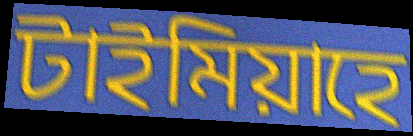
টাইমিয়াহে